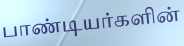
பாண்டியர்களின்